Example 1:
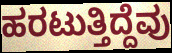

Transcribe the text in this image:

ಹರಟುತ್ತಿದ್ದೆವು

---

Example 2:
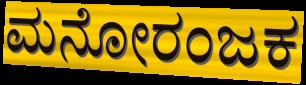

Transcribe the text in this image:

ಮನೋರಂಜಕ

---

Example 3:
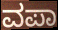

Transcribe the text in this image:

ವಪಾ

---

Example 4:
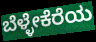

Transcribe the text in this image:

ಬೆಳ್ಳೇಕೆರೆಯ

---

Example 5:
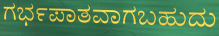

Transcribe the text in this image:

ಗರ್ಭಪಾತವಾಗಬಹುದು